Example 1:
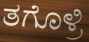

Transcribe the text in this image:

ತಗೊಳ್ರಿ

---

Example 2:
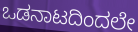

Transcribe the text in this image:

ಒಡನಾಟದಿಂದಲೇ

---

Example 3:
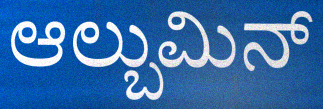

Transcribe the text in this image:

ಆಲ್ಬುಮಿನ್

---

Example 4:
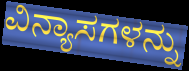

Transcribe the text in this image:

ವಿನ್ಯಾಸಗಳನ್ನು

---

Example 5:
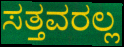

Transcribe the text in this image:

ಸತ್ತವರಲ್ಲ